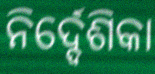
ନିର୍ଦ୍ଦେଶିକା